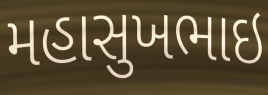
મહાસુખભાઇ